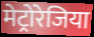
मेट्रोरेजिया